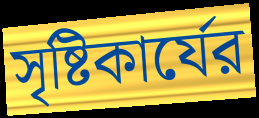
সৃষ্টিকার্যের